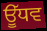
ਊੱਧਵ